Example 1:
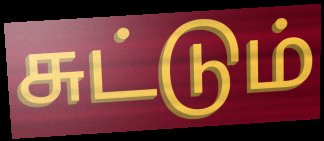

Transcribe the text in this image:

சுட்டும்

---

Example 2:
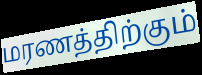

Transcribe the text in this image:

மரணத்திற்கும்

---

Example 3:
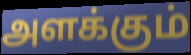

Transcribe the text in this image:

அளக்கும்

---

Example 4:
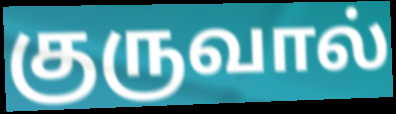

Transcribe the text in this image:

குருவால்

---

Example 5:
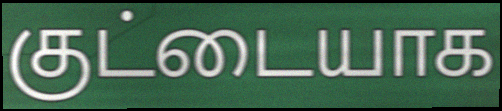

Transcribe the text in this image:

குட்டையாக